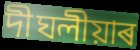
দীঘলীয়াৰ